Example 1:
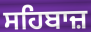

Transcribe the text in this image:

ਸਹਿਬਾਜ਼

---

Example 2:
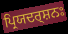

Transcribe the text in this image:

ਪ੍ਰਿਯਦਰ੍ਸ਼ਨਃ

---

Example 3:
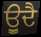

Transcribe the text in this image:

ਊੁਦੈ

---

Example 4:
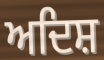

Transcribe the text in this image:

ਅਦਿਸ਼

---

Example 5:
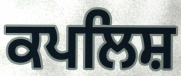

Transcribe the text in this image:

ਕਪਲਿਸ਼